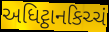
અધિટ્ઠાનકિચ્ચં